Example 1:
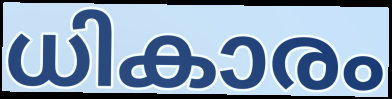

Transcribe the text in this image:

ധികാരം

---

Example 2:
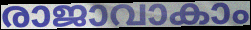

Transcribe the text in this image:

രാജാവാകാം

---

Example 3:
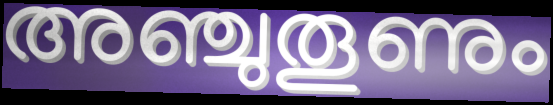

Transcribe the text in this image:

അഞ്ചുതൂണും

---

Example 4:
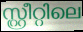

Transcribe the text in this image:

സ്റ്റ്രീറ്റിലെ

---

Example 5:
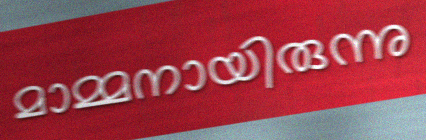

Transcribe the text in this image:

മാമ്മനായിരുന്നു